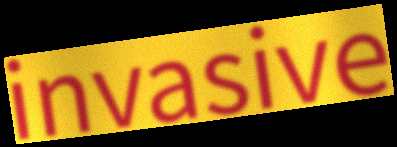
invasive